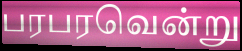
பரபரவென்று